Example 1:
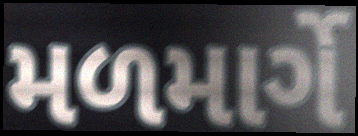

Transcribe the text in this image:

મળમાર્ગે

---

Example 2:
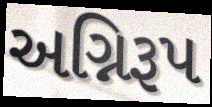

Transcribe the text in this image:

અગ્નિરૂપ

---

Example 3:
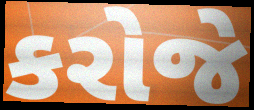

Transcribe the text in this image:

કરોજે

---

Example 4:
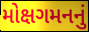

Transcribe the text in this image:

મોક્ષગમનનું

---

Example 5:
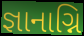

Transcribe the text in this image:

જ્ઞાનાગ્નિ